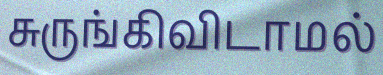
சுருங்கிவிடாமல்